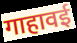
गाहावई